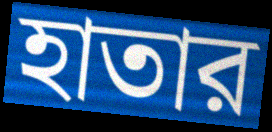
হাতার